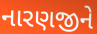
નારણજીને